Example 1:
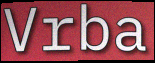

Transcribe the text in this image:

Vrba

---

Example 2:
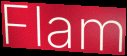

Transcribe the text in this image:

Flam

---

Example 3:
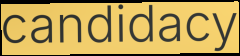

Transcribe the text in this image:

candidacy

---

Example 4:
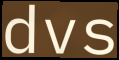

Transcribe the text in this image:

dvs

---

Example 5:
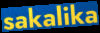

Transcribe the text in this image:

sakalika